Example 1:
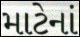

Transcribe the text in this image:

માટેનાં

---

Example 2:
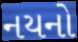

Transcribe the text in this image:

નયનો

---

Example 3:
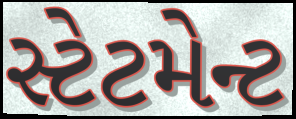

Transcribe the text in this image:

સ્ટેટમેન્ટ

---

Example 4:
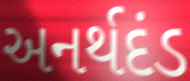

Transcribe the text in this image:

અનર્થદંડ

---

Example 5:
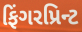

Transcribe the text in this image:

ફિંગરપ્રિન્ટ